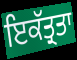
ਇਕੱਤ੍ਰਤਾ